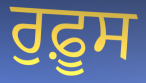
ਰੁਫ਼ੂਸ